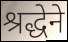
श्रद्धेने